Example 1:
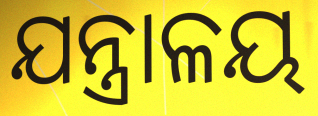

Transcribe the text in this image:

ଯନ୍ତ୍ରାଳୟ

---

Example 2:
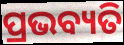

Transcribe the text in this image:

ପ୍ରଭବ୍ୟତି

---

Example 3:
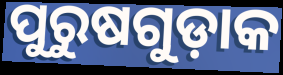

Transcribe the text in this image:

ପୁରୁଷଗୁଡ଼ାକ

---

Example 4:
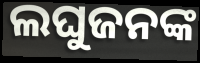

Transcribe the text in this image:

ଲଘୁଜନଙ୍କ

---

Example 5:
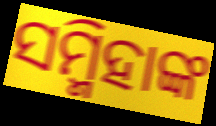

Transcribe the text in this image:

ସମ୍ମିହାଙ୍କ